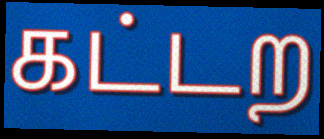
கட்டற